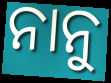
ନାନୁ